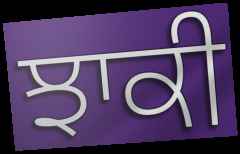
ਝਾਕੀ